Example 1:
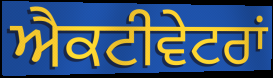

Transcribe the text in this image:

ਐਕਟੀਵੇਟਰਾਂ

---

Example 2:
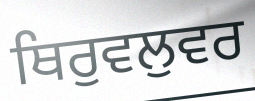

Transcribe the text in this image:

ਥਿਰੁਵਲੁਵਰ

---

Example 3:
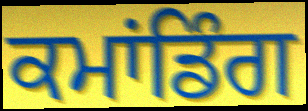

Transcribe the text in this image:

ਕਮਾਂਡਿੰਗ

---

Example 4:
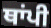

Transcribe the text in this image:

ਥਾਂਪੀ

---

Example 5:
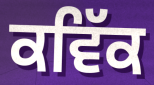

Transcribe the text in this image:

ਕਵਿੱਕ